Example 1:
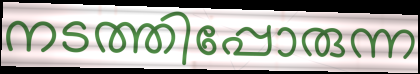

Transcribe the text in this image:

നടത്തിപ്പോരുന്ന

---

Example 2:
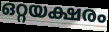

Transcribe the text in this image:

ഒറ്റയക്ഷരം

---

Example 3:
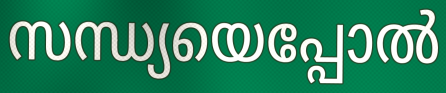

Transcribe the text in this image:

സന്ധ്യയെപ്പോൽ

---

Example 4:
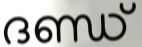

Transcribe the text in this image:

ദണ്ഡ്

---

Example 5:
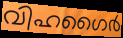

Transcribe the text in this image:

വിഹഗൈർ